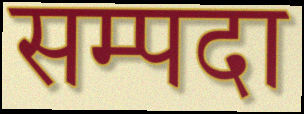
सम्पदा